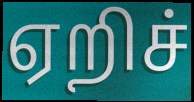
ஏறிச்